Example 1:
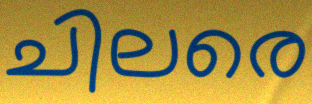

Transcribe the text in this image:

ചിലരെ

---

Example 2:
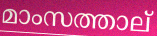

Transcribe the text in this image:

മാംസത്താല്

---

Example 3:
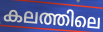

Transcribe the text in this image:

കലത്തിലെ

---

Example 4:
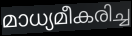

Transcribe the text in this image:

മാധ്യമീകരിച്ച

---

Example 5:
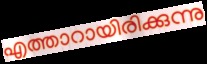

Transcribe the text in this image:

എത്താറായിരിക്കുന്നു